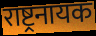
राष्ट्रनायक